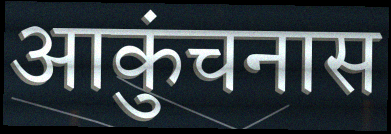
आकुंचनास